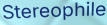
Stereophile